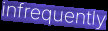
infrequently